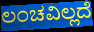
ಲಂಚವಿಲ್ಲದೆ